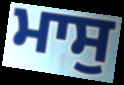
ਮਾਸੁ